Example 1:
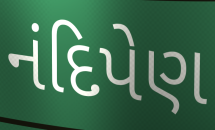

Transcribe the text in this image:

નંદિપેણ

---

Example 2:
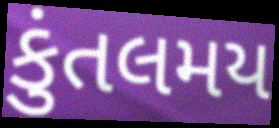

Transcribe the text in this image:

કુંતલમય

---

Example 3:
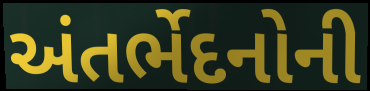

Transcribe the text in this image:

અંતર્ભેદનોની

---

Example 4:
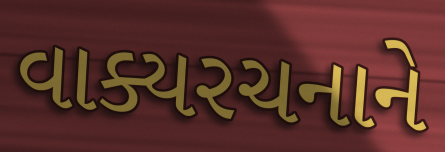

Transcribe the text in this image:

વાક્યરચનાને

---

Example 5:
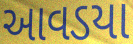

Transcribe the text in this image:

આવડયા